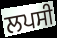
ਲਪਸੀ